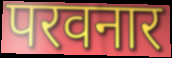
परवनार